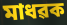
মাধৱক